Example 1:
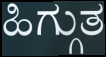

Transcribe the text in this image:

ಹಿಗ್ಗುತ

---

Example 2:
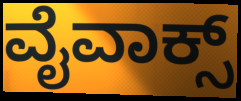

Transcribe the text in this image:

ವೈವಾಕ್ಸ್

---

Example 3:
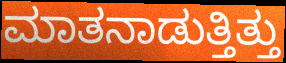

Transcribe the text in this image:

ಮಾತನಾಡುತ್ತಿತ್ತು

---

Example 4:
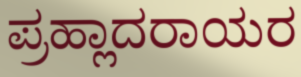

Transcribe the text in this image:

ಪ್ರಹ್ಲಾದರಾಯರ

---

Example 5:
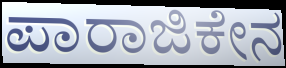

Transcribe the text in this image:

ಪಾರಾಜಿಕೇನ